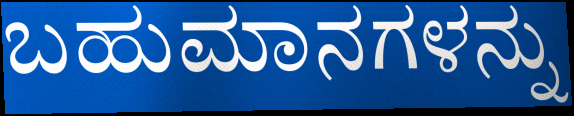
ಬಹುಮಾನಗಳನ್ನು